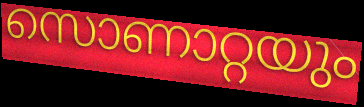
സൊണാറ്റയും